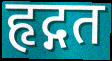
हृद्गत